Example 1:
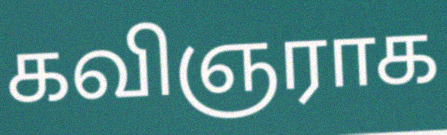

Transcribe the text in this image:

கவிஞராக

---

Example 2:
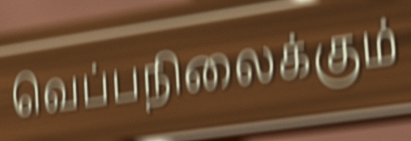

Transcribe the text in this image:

வெப்பநிலைக்கும்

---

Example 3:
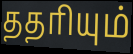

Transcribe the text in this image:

ததரியும்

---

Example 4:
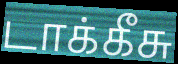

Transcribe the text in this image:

டாக்கீசு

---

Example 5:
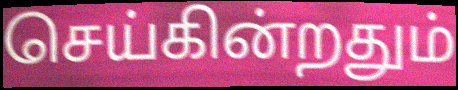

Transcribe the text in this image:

செய்கின்றதும்